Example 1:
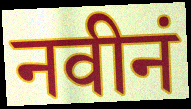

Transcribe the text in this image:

नवीनं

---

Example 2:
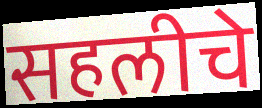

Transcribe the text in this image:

सहलीचे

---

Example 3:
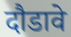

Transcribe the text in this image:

दौडावे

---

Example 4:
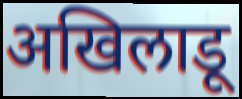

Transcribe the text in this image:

अखिलाडू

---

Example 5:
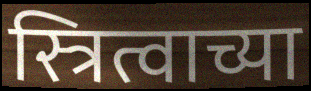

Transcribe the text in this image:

स्त्रित्वाच्या